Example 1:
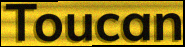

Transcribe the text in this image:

Toucan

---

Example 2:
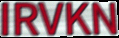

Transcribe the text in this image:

IRVKN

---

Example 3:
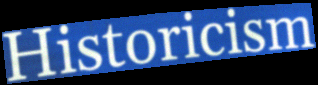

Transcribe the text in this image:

Historicism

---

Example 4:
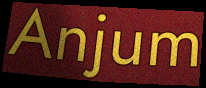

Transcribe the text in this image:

Anjum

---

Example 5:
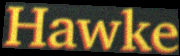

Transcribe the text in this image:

Hawke